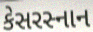
કેસરસ્નાન